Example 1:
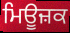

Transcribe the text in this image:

ਮਿਊਜ਼ਕ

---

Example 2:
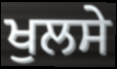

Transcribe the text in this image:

ਖੁਲਸੇ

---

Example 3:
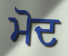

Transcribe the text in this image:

ਮੋਦ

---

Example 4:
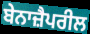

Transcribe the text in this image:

ਬੇਨਾਜ਼ੈਪਰੀਲ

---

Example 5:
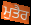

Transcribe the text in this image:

ਮੁਤੈਰ